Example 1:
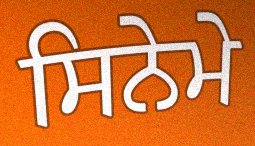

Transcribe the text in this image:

ਸਿਨੇਮੇ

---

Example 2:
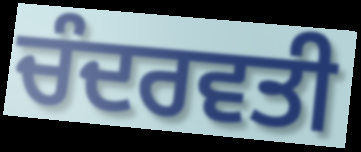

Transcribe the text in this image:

ਚੰਦਰਵਤੀ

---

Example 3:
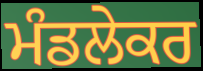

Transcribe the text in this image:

ਮੰਡਲੇਕਰ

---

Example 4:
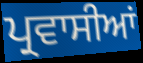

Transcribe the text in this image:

ਪ੍ਰਵਾਸੀਆਂ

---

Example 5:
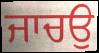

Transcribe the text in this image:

ਜਾਚਉ